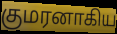
குமரனாகிய